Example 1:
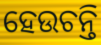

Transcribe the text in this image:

ହେଉଚନ୍ତି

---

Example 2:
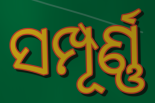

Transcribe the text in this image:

ସମ୍ପୂର୍ଣ୍ଣ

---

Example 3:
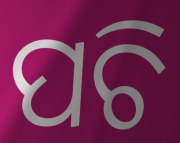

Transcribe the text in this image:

ପଚି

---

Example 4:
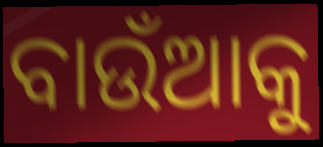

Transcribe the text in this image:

ବାଉଁଆକୁ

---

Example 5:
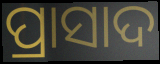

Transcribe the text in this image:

ପ୍ରାସାଦ